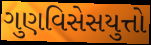
ગુણવિસેસયુત્તો